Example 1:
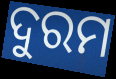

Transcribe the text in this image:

ଦୁରମ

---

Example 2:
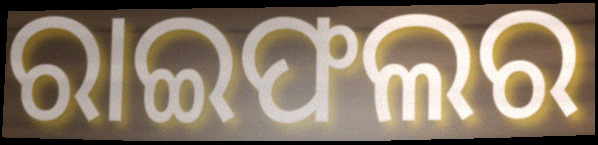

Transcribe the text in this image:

ରାଇଫଲର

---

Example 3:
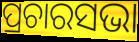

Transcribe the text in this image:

ପ୍ରଚାରସଭା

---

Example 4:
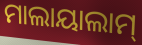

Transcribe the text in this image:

ମାଲାୟାଲାମ୍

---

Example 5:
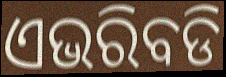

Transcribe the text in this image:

ଏଭରିବଡି